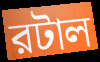
রটাল